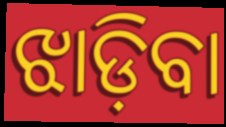
ଝାଡ଼ିବା